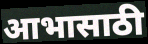
आभासाठी